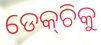
ଡେକ୍‌ଚିକୁ